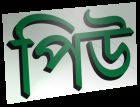
পিউ